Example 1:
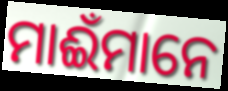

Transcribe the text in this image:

ମାଈଁମାନେ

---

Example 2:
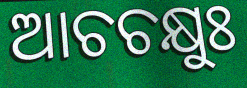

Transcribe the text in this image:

ଆଚଚକ୍ଷୁଃ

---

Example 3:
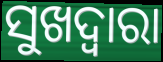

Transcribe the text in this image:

ସୁଖଦ୍ଵାରା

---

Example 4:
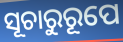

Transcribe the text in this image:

ସୂଚାରୁରୂପେ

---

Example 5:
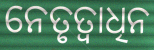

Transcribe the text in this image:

ନେତୃତ୍ୱାଧିନ